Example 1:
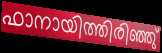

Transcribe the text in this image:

ഫാനായിത്തിരിഞ്ഞു്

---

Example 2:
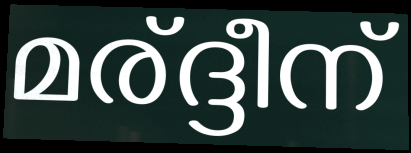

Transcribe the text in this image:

മര്ദ്ദീന്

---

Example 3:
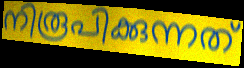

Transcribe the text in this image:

നിരൂപിക്കുന്നത്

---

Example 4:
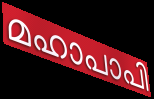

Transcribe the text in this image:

മഹാപാപി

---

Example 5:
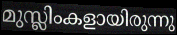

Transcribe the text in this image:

മുസ്ലിംകളായിരുന്നു